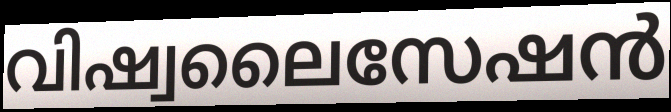
വിഷ്വലൈസേഷൻ